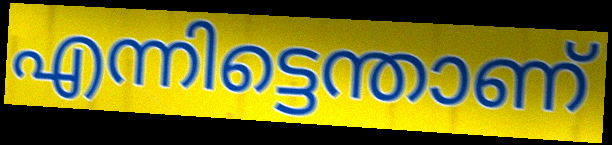
എന്നിട്ടെന്താണ്